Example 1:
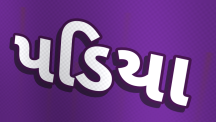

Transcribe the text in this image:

પડિયા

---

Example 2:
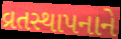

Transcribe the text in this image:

વ્રતસ્થાપનાને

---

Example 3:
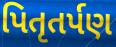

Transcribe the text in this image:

પિતૃતર્પણ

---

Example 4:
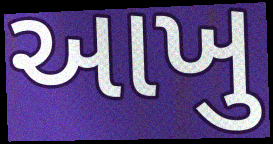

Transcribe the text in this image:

આખુ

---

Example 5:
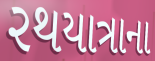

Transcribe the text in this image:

રથયાત્રાના